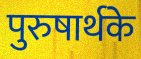
पुरुषार्थके